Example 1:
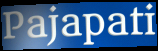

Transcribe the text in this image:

Pajapati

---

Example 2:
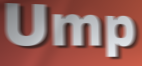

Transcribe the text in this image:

Ump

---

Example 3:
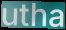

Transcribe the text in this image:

utha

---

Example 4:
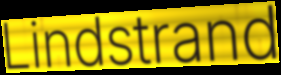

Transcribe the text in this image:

Lindstrand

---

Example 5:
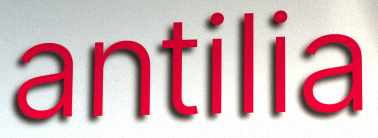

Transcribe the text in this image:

antilia